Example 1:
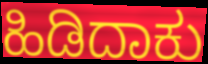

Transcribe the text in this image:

ಹಿಡಿದಾಕು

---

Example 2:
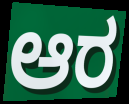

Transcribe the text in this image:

ಆರ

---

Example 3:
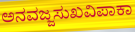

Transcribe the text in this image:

ಅನವಜ್ಜಸುಖವಿಪಾಕಾ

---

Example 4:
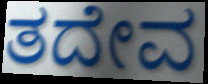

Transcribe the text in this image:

ತದೇವ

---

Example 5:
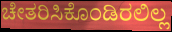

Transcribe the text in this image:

ಚೇತರಿಸಿಕೊಂಡಿರಲಿಲ್ಲ